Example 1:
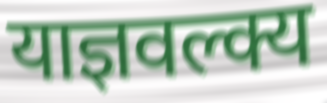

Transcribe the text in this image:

याज्ञवल्क्य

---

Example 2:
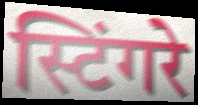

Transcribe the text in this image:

स्टिंगरे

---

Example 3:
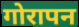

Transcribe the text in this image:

गोरापन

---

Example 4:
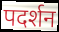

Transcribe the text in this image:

पदर्शन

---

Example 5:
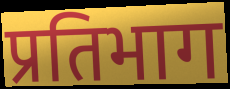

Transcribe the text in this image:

प्रतिभाग